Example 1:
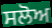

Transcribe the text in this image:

ਸਲੋਅ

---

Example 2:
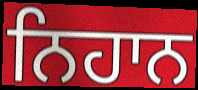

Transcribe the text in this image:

ਨਿਹਾਨ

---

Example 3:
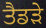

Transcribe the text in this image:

ਤੈਡੜੇ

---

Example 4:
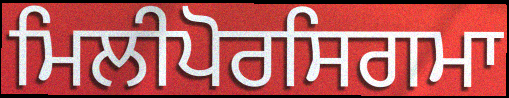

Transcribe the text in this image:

ਮਿਲੀਪੋਰਸਿਗਮਾ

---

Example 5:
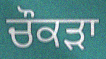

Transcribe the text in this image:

ਚੌਕੜਾ